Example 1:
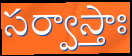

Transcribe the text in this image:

సర్వాస్తాః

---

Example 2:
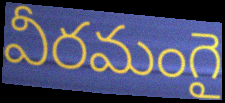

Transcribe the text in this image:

వీరమంగై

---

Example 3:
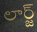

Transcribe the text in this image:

లార్జ్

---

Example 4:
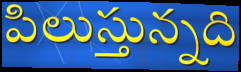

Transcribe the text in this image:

పిలుస్తున్నది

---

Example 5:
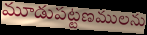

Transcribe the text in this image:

మూడుపట్టణములను